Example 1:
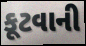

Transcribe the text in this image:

કૂટવાની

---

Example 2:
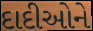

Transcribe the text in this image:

દાદીઓને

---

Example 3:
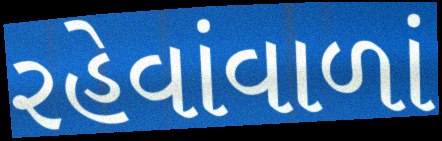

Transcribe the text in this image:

રહેવાંવાળાં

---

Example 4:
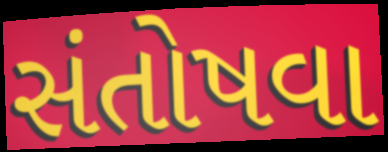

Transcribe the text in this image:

સંતોષવા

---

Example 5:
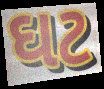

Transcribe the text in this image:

ઘટ